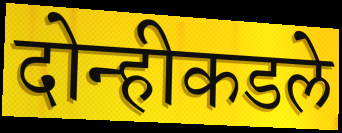
दोन्हीकडले